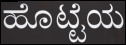
ಹೊಟ್ಟೆಯ